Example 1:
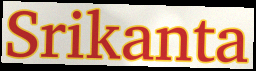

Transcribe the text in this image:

Srikanta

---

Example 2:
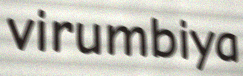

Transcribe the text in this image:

virumbiya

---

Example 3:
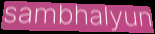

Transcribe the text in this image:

sambhalyun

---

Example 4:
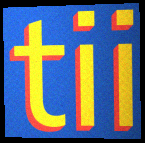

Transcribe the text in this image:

tii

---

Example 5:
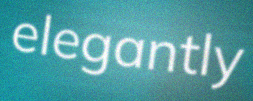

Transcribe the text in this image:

elegantly